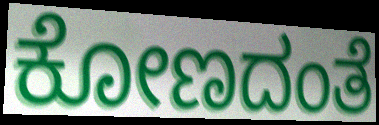
ಕೋಣದಂತೆ